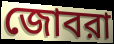
জোবরা